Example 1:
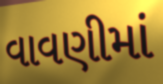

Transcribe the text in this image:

વાવણીમાં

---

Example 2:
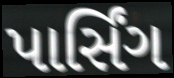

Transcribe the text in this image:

પાર્સિંગ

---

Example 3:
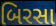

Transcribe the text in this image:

બિરસા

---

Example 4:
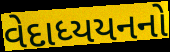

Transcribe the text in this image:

વેદાધ્યયનનો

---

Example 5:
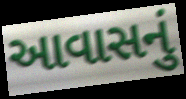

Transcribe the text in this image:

આવાસનું